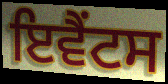
ਇਵੈਂਟਸ